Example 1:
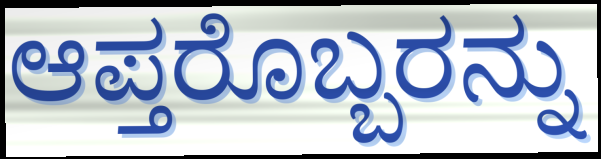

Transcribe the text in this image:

ಆಪ್ತರೊಬ್ಬರನ್ನು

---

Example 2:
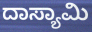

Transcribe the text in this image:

ದಾಸ್ಯಾಮಿ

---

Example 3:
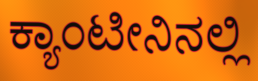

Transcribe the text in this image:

ಕ್ಯಾಂಟೀನಿನಲ್ಲಿ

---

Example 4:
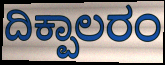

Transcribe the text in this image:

ದಿಕ್ಪಾಲರಂ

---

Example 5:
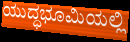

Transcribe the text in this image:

ಯುದ್ಧಭೂಮಿಯಲ್ಲಿ